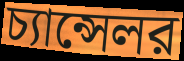
চ্যান্সেলর